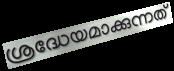
ശ്രദ്ധേയമാക്കുന്നത്